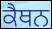
ਕੈਥਨ